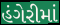
હંગેરીમાં